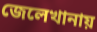
জেলেখানায়